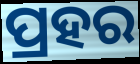
ପ୍ରହର